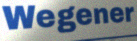
Wegener